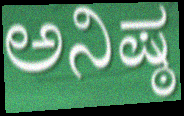
ಅನಿಷ್ಠ